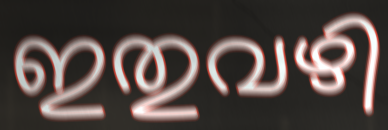
ഇതുവഴി